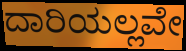
ದಾರಿಯಲ್ಲವೇ